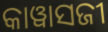
କାୱାସଜୀ